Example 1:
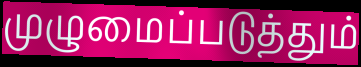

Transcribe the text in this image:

முழுமைப்படுத்தும்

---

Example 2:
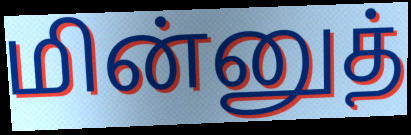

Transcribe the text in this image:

மின்னுத்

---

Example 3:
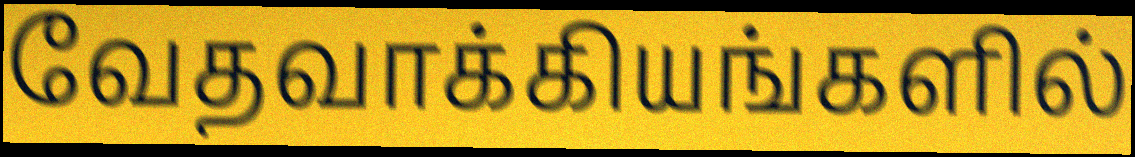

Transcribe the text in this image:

வேதவாக்கியங்களில்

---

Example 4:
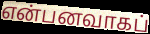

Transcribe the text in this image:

என்பனவாகப்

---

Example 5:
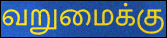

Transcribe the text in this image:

வறுமைக்கு